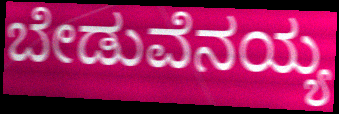
ಬೇಡುವೆನಯ್ಯ